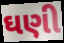
ઘણી